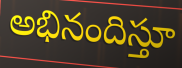
అభినందిస్తూ